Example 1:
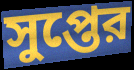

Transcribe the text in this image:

সুপ্তের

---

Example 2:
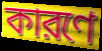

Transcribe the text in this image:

কারণে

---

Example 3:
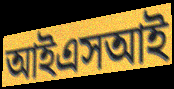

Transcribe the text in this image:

আইএসআই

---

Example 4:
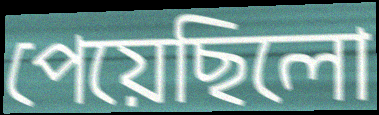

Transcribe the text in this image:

পেয়েছিলো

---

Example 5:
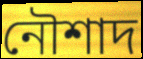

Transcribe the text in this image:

নৌশাদ